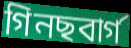
গিনছবাৰ্গ